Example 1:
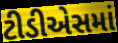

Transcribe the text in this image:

ટીડીએસમાં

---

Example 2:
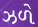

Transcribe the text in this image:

ઝળે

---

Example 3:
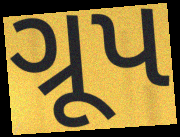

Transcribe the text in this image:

ગ્રૂપ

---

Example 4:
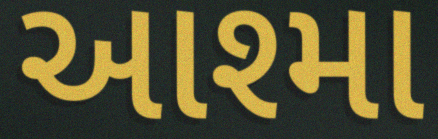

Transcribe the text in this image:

આશ્મા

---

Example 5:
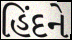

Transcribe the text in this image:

હિંદને